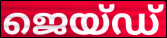
ജെയ്ഡ്